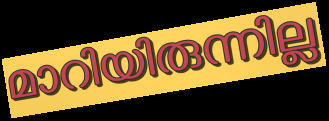
മാറിയിരുന്നില്ല